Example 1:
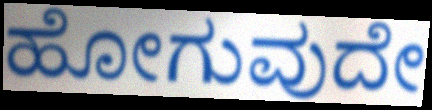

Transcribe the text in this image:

ಹೋಗುವುದೇ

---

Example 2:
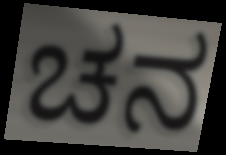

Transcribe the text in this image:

ಚನ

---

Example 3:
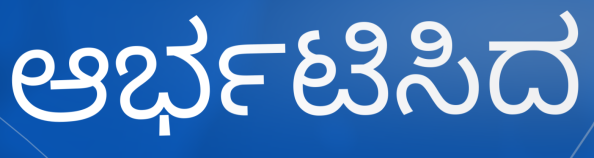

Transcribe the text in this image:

ಆರ್ಭಟಿಸಿದ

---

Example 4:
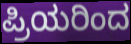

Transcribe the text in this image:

ಪ್ರಿಯರಿಂದ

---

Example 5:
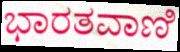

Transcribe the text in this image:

ಭಾರತವಾಣಿ